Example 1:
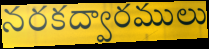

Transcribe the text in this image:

నరకద్వారములు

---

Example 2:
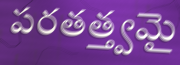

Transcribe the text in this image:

పరతత్త్వమై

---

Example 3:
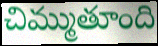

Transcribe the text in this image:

చిమ్ముతూంది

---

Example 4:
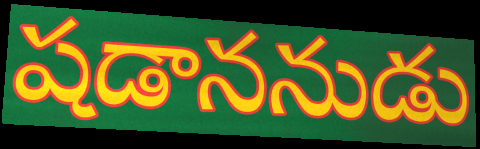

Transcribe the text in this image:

షడాననుడు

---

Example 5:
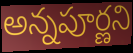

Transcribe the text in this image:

అన్నపూర్ణని